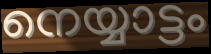
നെയ്യാട്ടം